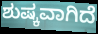
ಶುಷ್ಕವಾಗಿದೆ